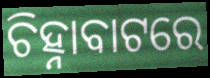
ଚିହ୍ନାବାଟରେ